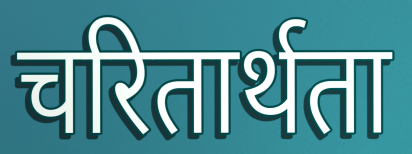
चरितार्थता